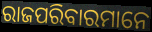
ରାଜପରିବାରମାନେ